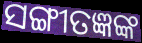
ସଙ୍ଗୀତଜ୍ଞଙ୍କ